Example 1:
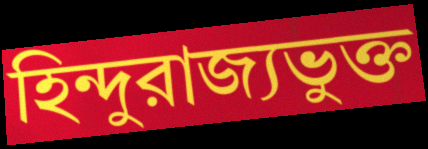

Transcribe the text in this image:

হিন্দুরাজ্যভুক্ত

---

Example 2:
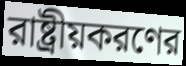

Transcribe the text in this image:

রাষ্ট্রীয়করণের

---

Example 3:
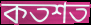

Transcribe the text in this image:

কতশত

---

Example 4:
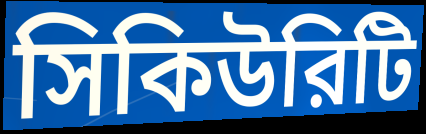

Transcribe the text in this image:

সিকিউরিটি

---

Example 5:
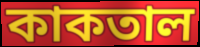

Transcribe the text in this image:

কাকতাল